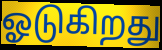
ஓடுகிறது